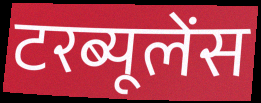
टरब्यूलेंस